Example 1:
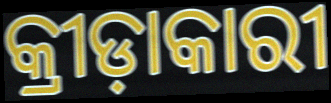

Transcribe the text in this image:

କ୍ରୀଡ଼ାକାରୀ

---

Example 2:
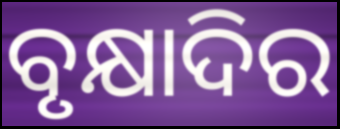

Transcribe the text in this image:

ବୃକ୍ଷାଦିର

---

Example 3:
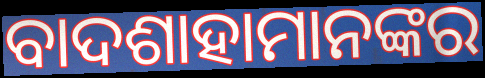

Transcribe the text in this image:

ବାଦଶାହାମାନଙ୍କର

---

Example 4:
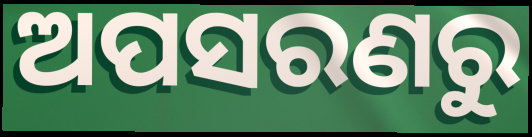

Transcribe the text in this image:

ଅପସରଣରୁ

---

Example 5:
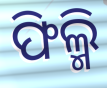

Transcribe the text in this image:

ଫିଲ୍ମି